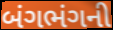
બંગભંગની